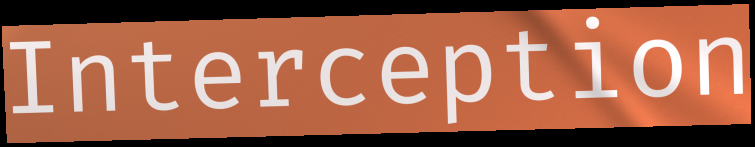
Interception